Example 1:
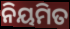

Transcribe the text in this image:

ନିୟମିତ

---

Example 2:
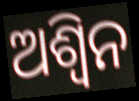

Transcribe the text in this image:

ଅଶ୍ଵିନ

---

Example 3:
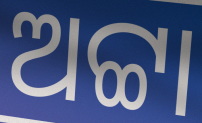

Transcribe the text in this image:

ଅଟ୍ଟା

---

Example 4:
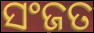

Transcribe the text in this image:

ସଂଜତ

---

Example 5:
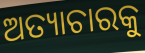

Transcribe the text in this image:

ଅତ୍ୟାଚାରକୁ